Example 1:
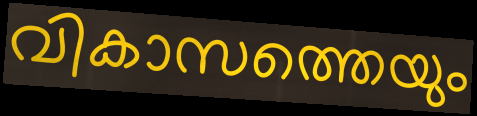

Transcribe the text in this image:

വികാസത്തെയും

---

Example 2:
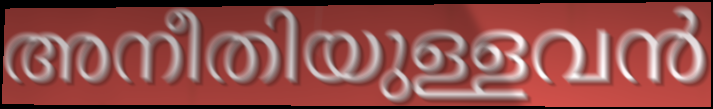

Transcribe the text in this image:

അനീതിയുള്ളവൻ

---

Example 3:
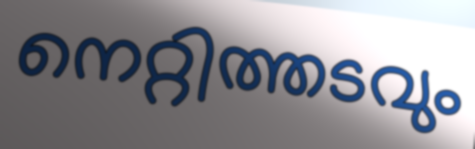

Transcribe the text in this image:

നെറ്റിത്തടവും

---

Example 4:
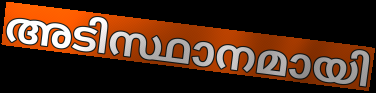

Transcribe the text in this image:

അടിസ്ഥാനമായി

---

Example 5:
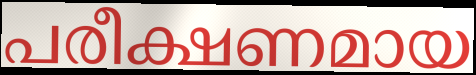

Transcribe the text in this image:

പരീക്ഷണമായ